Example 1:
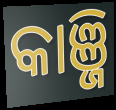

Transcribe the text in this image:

କାଞ୍ଜି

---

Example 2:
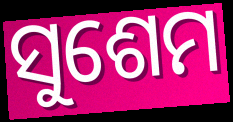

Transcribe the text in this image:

ସୁଶେମ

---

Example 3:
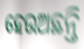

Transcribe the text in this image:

ହେଉଅଛନ୍ତି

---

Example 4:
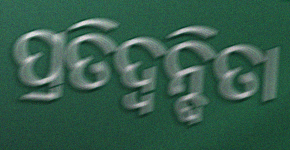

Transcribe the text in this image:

ପ୍ରତିଦ୍ୱନ୍ଦିତା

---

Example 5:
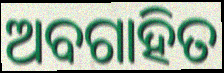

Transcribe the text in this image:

ଅବଗାହିତ